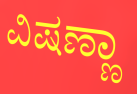
ವಿಷಣ್ಣಾ